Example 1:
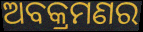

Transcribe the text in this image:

ଅବକ୍ରମଣର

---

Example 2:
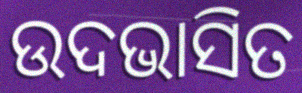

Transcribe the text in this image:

ଉଦଭାସିତ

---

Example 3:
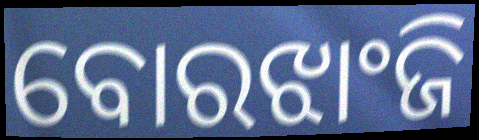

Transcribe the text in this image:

ବୋରଝାଂଜି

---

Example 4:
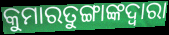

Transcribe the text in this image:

କୁମାରତୁଙ୍ଗାଙ୍କଦ୍ୱାରା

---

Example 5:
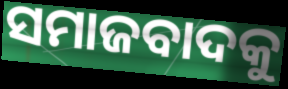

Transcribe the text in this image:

ସମାଜବାଦକୁ